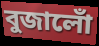
বুজালোঁ